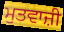
ਮੁਤਵਾਜ਼ੀ